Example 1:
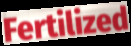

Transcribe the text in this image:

Fertilized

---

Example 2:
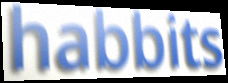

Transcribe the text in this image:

habbits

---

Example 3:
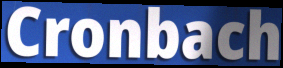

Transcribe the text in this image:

Cronbach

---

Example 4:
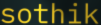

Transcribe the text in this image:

sothik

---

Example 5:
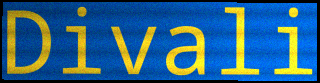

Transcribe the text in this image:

Divali